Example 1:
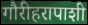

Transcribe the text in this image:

गौरीहरापाशी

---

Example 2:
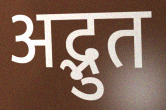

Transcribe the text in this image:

अद्भुत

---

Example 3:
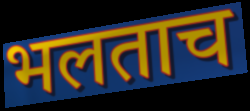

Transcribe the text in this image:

भलताच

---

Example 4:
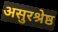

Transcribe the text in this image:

असुरश्रेष्ठ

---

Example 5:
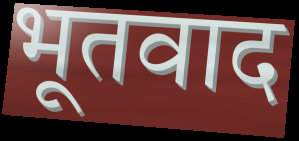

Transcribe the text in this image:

भूतवाद